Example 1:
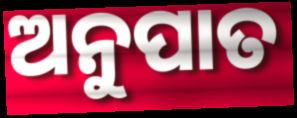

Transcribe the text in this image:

ଅନୁପାତ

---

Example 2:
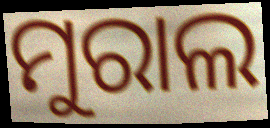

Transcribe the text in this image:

ମୁରାଲ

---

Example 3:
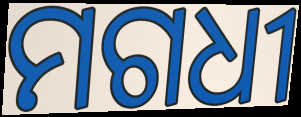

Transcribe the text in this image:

ମଗଧୀ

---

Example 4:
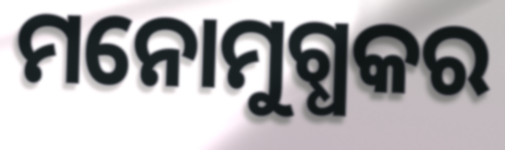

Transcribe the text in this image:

ମନୋମୁଗ୍ଧକର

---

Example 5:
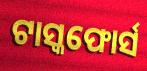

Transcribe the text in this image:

ଟାସ୍କଫୋର୍ସ